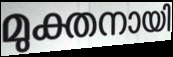
മുക്തനായി